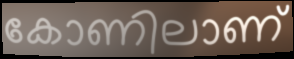
കോണിലാണ്